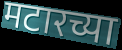
मटारच्या